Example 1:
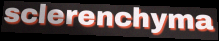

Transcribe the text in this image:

sclerenchyma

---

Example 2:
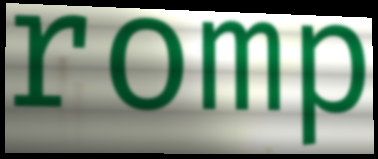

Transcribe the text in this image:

romp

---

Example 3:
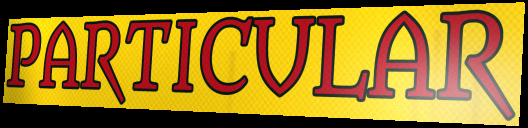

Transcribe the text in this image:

PARTICULAR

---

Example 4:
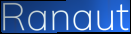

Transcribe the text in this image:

Ranaut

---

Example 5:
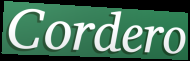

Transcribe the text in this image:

Cordero